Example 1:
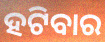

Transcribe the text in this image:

ହଟିବାର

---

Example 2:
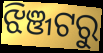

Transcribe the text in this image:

ଝିଞ୍ଜଟରୁ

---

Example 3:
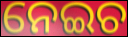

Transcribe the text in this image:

ନେଇଚ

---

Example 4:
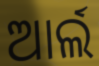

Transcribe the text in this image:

ଆର୍ଲ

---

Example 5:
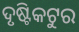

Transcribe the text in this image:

ଦୃଷ୍ଟିକଟୁର